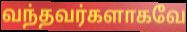
வந்தவர்களாகவே